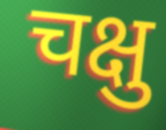
चक्षु